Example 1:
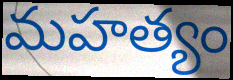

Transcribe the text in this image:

మహత్యం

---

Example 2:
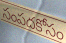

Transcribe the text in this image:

సంపదకోసం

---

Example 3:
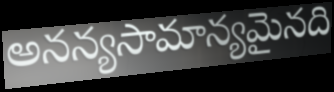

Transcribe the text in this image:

అనన్యసామాన్యమైనది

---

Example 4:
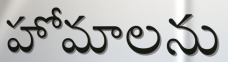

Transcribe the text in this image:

హోమాలను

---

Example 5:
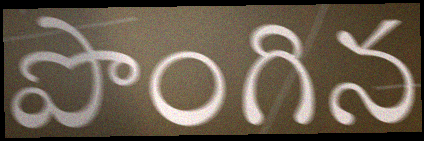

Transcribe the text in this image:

పొంగిన